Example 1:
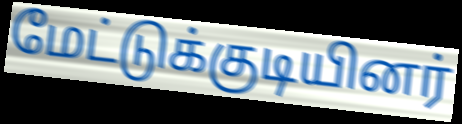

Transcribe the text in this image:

மேட்டுக்குடியினர்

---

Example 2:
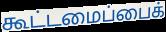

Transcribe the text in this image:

கூட்டமைப்பைக்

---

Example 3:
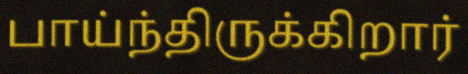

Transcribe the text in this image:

பாய்ந்திருக்கிறார்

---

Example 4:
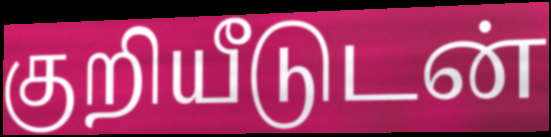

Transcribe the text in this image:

குறியீடுடன்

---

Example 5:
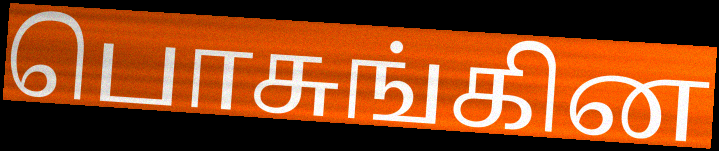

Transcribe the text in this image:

பொசுங்கின